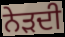
ਨੇੜਦੀ